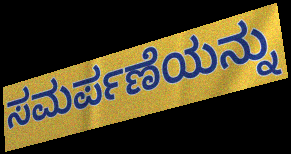
ಸಮರ್ಪಣೆಯನ್ನು